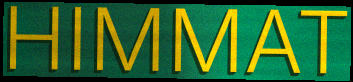
HIMMAT